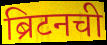
ब्रिटनची